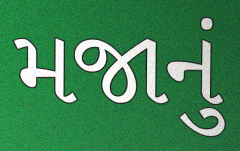
મજાનું